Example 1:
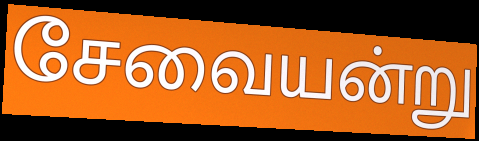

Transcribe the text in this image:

சேவையன்று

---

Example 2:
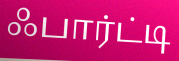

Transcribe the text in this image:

ஃபார்ட்டி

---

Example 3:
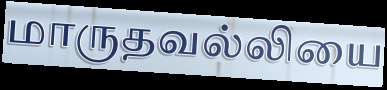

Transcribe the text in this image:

மாருதவல்லியை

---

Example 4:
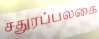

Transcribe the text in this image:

சதுரப்பலகை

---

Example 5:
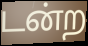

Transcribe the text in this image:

டன்ற